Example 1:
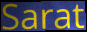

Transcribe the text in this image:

Sarat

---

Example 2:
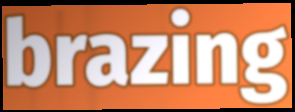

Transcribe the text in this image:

brazing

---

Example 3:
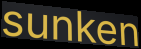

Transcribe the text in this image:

sunken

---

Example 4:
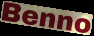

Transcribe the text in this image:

Benno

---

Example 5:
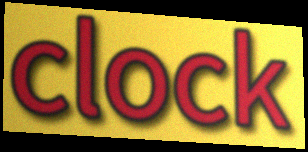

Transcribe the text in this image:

clock